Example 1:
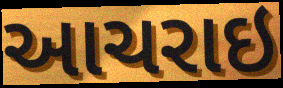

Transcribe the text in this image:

આચરાઇ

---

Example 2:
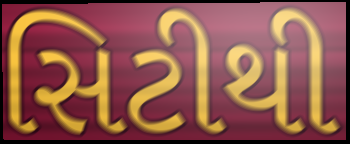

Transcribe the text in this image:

સિટીથી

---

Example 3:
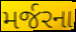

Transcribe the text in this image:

મર્જરના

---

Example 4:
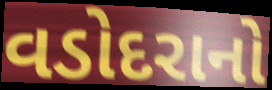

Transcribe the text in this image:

વડોદરાનો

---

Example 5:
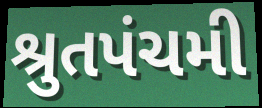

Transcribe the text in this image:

શ્રુતપંચમી